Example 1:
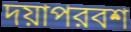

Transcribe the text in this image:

দয়াপরবশ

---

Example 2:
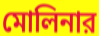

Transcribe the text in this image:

মোলিনার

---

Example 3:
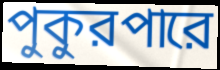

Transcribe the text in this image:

পুকুরপারে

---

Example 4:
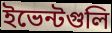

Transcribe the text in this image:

ইভেন্টগুলি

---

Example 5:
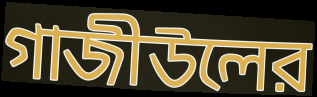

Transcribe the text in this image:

গাজীউলের